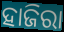
ହାଜିରା